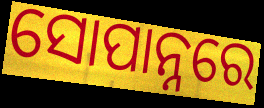
ସୋପାନ୍ନରେ